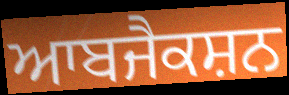
ਆਬਜੈਕਸ਼ਨ